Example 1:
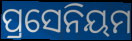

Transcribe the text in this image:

ପ୍ରସେନିୟମ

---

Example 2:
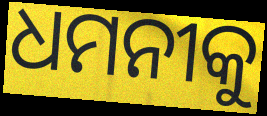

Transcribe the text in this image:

ଧମନୀକୁ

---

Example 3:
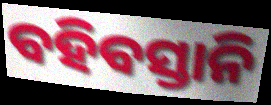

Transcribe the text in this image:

ବହିବସ୍ତାନି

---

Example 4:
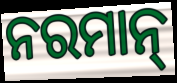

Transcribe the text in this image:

ନରମାନ୍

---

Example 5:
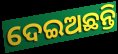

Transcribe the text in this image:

ଦେଇଅଛନ୍ତି